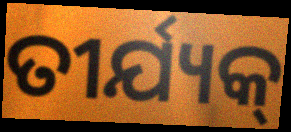
ତୀର୍ଯ୍ୟକ୍